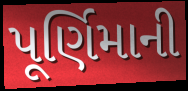
પૂર્ણિમાની